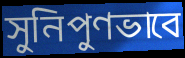
সুনিপুণভাবে